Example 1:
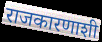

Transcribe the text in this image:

राजकारणाशी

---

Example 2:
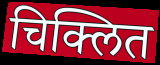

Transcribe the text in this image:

चिक्लित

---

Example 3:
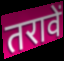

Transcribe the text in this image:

तरावें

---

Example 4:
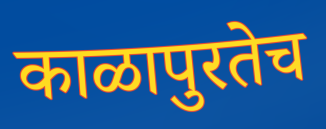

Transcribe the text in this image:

काळापुरतेच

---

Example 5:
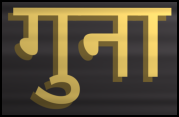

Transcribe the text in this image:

गुना